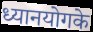
ध्यानयोगके